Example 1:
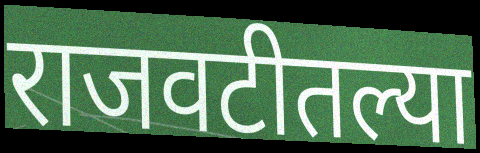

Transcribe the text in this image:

राजवटीतल्या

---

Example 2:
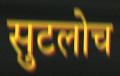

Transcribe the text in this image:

सुटलोच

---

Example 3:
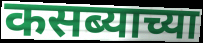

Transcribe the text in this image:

कसब्याच्या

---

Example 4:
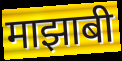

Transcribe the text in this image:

माझाबी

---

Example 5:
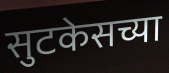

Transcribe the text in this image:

सुटकेसच्या